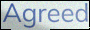
Agreed